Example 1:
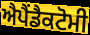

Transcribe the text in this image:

ਐਪੈਂਡੈਕਟੋਮੀ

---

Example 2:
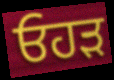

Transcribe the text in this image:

ਓਹੜ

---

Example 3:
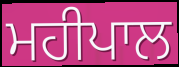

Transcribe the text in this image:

ਮਹੀਪਾਲ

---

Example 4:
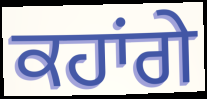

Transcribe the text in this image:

ਕਹਾਂਗੇ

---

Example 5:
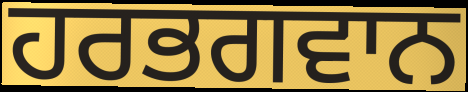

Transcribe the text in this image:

ਹਰਭਗਵਾਨ